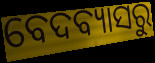
ବେଦବ୍ୟାସରୁ